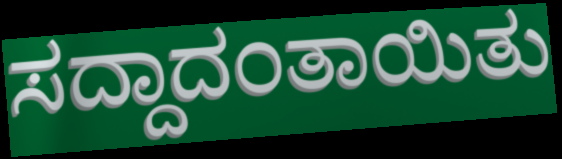
ಸದ್ದಾದಂತಾಯಿತು